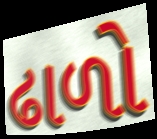
ઢાળો